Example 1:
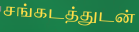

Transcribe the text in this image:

சங்கடத்துடன்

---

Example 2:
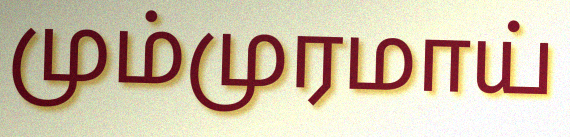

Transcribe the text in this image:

மும்முரமாய்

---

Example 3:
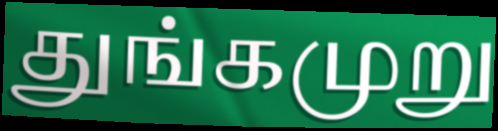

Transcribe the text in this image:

துங்கமுறு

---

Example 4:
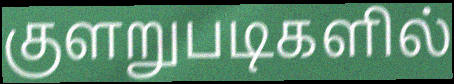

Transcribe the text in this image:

குளறுபடிகளில்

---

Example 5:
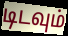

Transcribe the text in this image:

டிடவும்